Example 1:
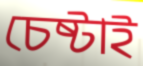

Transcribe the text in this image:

চেষ্টাই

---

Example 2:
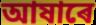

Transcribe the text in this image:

আষাৰে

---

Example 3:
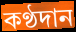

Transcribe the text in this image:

কণ্ঠদান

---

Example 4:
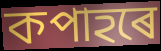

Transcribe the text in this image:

কপাহৰে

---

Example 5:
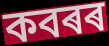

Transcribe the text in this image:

কবৰৰ